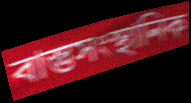
বাস্তুসংস্থানিক